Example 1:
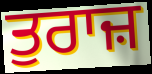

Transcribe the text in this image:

ਤੁਰਾਜ਼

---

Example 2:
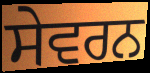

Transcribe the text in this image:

ਸੇਵਰਨ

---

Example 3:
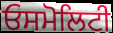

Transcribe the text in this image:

ਓਸਮੋਲਿਟੀ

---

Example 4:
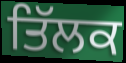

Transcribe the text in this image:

ਤਿੱਲਕ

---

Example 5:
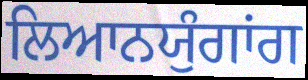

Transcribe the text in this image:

ਲਿਆਨਯੁੰਗਾਂਗ